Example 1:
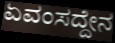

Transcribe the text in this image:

ಏವಂಸದ್ದೇನ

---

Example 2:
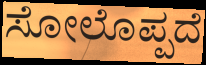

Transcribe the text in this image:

ಸೋಲೊಪ್ಪದೆ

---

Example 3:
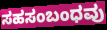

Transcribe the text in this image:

ಸಹಸಂಬಂಧವು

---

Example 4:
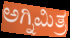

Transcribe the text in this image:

ಅಗ್ನಿಮಿತ್ರ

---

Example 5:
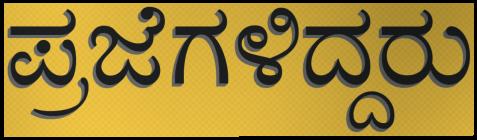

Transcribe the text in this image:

ಪ್ರಜೆಗಳಿದ್ದರು